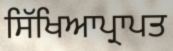
ਸਿੱਖਿਆਪ੍ਰਾਪਤ